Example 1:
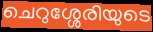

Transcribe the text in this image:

ചെറുശ്ശേരിയുടെ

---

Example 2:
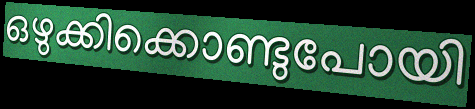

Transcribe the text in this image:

ഒഴുക്കിക്കൊണ്ടുപോയി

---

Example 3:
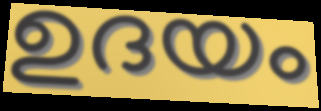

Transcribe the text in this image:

ഉദയം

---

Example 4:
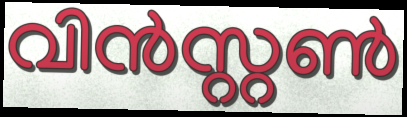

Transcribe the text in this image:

വിൻസ്റ്റൺ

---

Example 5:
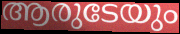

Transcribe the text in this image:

ആരുടേയും